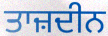
ਤਾਜ਼ਦੀਨ